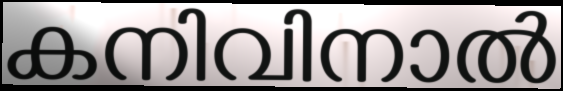
കനിവിനാൽ